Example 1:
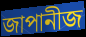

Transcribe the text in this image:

জাপানীজ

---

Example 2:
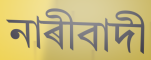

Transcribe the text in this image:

নাৰীবাদী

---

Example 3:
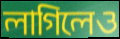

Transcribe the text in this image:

লাগিলেও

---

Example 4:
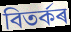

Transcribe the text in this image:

বিতৰ্কৰ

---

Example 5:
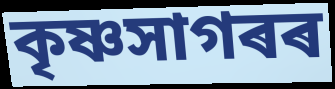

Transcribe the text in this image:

কৃষ্ণসাগৰৰ